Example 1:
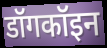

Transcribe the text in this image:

डॉगकॉइन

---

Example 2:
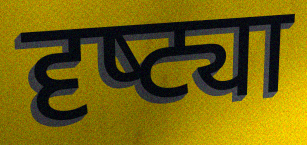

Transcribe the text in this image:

दृष्ट्या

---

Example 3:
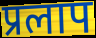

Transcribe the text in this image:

प्रलाप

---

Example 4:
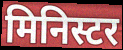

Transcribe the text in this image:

मिनिस्टर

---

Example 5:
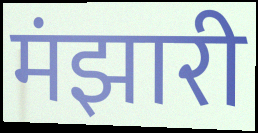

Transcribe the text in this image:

मंझारी